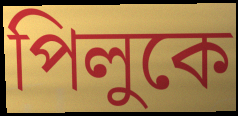
পিলুকে